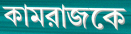
কামরাজকে